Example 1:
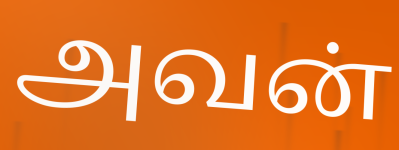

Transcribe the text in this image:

அவன்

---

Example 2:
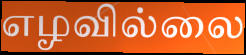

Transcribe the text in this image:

எழவில்லை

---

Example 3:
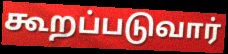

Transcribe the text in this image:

கூறப்படுவார்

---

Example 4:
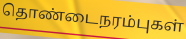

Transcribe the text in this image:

தொண்டைநரம்புகள்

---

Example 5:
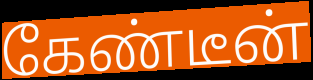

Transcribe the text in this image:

கேண்டீன்